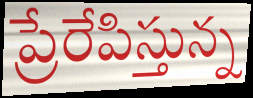
ప్రేరేపిస్తున్న